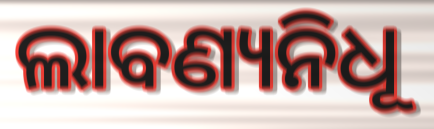
ଲାବଣ୍ୟନିଧୂ